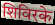
शिविरके